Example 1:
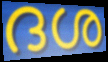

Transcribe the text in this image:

ദശ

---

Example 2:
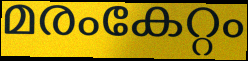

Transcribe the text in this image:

മരംകേറ്റം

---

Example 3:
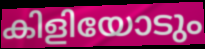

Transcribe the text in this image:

കിളിയോടും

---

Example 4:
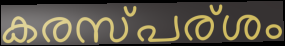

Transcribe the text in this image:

കരസ്പര്ശം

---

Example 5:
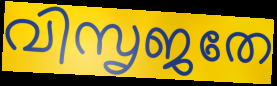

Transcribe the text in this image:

വിസൃജതേ